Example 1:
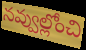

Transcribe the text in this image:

నవ్వుల్లోంచి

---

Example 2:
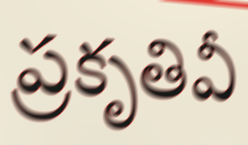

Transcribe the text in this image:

ప్రకృతివీ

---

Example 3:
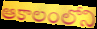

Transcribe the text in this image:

ఆకాలంలోని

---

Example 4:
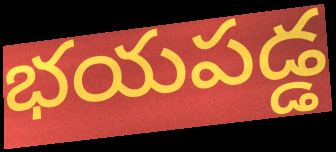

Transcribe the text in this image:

భయపడ్డ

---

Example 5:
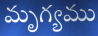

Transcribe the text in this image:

మృగ్యము